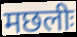
मछलीः